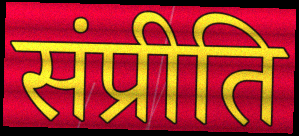
संप्रीति